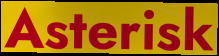
Asterisk